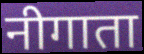
नीगाता